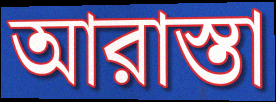
আরাস্তা